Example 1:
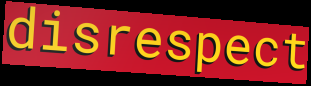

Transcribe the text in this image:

disrespect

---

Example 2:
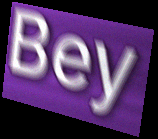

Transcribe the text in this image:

Bey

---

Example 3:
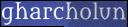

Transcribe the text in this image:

gharcholun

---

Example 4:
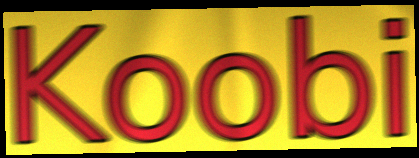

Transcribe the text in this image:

Koobi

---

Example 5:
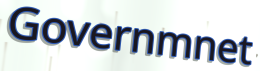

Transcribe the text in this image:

Governmnet